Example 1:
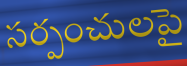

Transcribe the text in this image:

సర్పంచులపై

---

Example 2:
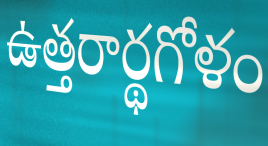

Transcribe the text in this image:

ఉత్తరార్థగోళం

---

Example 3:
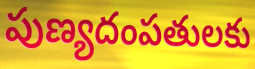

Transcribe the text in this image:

పుణ్యదంపతులకు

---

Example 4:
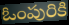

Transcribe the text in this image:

ఓంపురికి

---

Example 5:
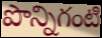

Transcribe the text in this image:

పొన్నిగంటి